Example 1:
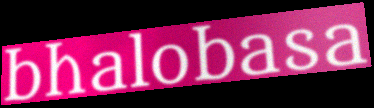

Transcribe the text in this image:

bhalobasa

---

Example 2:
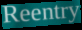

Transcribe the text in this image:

Reentry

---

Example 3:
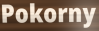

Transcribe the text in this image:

Pokorny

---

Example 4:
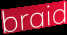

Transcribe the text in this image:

braid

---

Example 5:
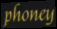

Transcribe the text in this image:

phoney